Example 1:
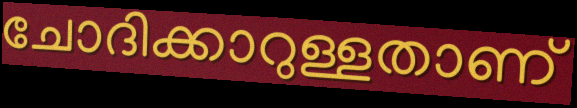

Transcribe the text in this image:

ചോദിക്കാറുള്ളതാണ്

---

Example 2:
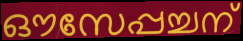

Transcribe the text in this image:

ഔസേപ്പച്ചന്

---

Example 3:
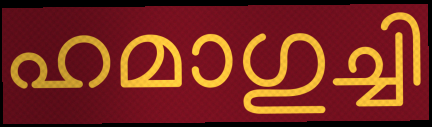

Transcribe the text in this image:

ഹമാഗുച്ചി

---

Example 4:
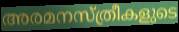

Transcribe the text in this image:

അരമനസ്ത്രീകളുടെ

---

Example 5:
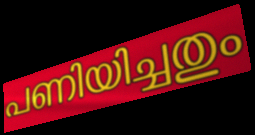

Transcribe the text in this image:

പണിയിച്ചതും